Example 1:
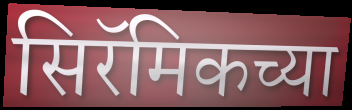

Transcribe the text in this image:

सिरॅमिकच्या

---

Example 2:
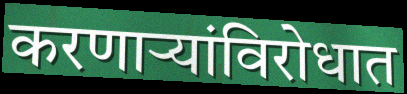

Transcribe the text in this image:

करणाऱ्यांविरोधात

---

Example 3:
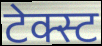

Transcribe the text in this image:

टेक्स्ट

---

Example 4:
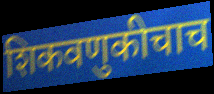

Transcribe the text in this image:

शिकवणुकीचाच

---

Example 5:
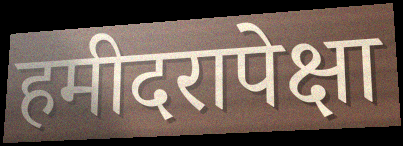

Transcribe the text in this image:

हमीदरापेक्षा